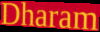
Dharam